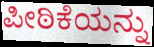
ಪೀಠಿಕೆಯನ್ನು